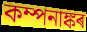
কম্পনাঙ্কৰ